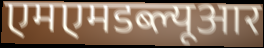
एमएमडब्ल्यूआर